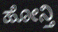
ಹೋನ್ತಿ